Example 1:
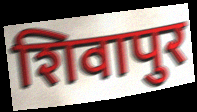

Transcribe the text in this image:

शिवापुर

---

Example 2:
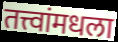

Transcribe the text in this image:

तत्त्वांमधला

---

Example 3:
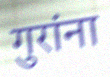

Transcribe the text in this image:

गुरांना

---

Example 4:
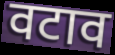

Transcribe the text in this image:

वटाव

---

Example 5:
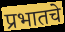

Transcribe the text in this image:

प्रभातचे